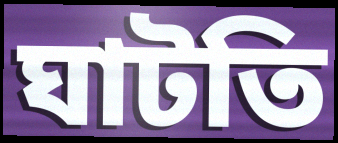
ঘাটতি